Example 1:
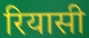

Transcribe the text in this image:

रियासी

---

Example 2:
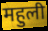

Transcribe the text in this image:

महुली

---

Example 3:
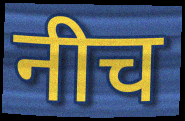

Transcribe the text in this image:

नीच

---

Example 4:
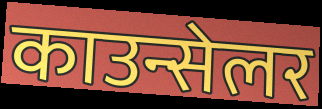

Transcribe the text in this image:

काउन्सेलर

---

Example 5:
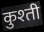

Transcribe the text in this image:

कुश्‍ती